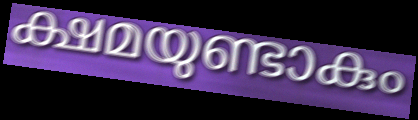
ക്ഷമയുണ്ടാകും